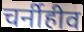
चर्नीहीव